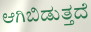
ಆಗಿಬಿಡುತ್ತದೆ